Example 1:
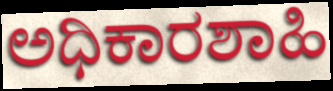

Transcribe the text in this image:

ಅಧಿಕಾರಶಾಹಿ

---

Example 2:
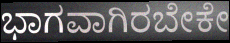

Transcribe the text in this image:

ಭಾಗವಾಗಿರಬೇಕೇ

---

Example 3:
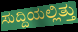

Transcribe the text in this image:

ಸುದ್ದಿಯಲ್ಲಿತ್ತು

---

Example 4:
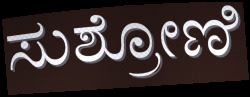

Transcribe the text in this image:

ಸುಶ್ರೋಣಿ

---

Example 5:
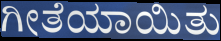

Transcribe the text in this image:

ಗೀತೆಯಾಯಿತು